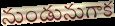
నుండునుగాక